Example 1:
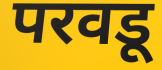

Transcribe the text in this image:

परवडू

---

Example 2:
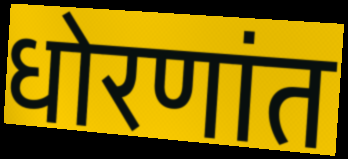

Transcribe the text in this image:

धोरणांत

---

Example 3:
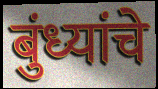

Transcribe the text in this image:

बुंध्यांचे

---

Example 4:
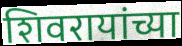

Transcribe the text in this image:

शिवरायांच्या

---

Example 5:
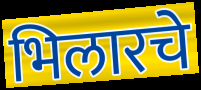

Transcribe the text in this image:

भिलारचे